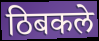
ठिबकले